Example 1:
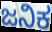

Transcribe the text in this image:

ಜನಿಕ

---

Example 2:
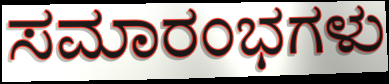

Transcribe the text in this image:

ಸಮಾರಂಭಗಳು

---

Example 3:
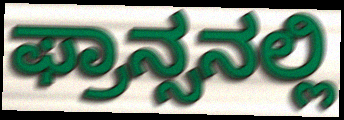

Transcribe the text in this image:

ಫ್ರಾನ್ಸನಲ್ಲಿ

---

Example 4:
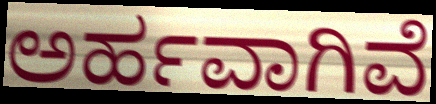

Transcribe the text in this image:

ಅರ್ಹವಾಗಿವೆ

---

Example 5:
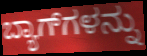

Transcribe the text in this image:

ಬ್ಯಾಗ್‍ಗಳನ್ನು